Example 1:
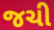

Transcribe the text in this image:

જચી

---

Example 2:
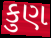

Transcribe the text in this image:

કુણ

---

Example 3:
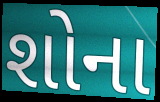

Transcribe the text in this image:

શોના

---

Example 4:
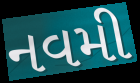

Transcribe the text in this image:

નવમી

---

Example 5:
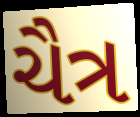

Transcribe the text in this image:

ચૈત્ર